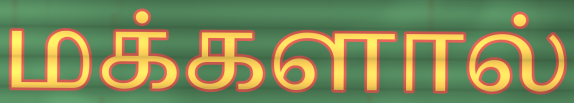
மக்களால்